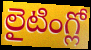
లైటింగ్లో